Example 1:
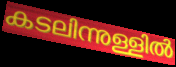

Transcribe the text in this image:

കടലിന്നുള്ളിൽ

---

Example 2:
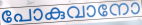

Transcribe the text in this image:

പോകുവാനോ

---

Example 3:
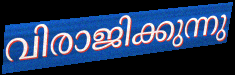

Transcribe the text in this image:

വിരാജിക്കുന്നു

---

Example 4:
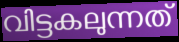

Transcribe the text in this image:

വിട്ടകലുന്നത്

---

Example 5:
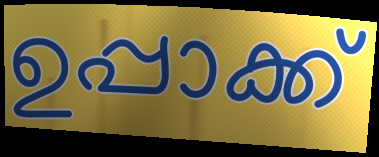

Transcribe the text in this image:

ഉപ്പാക്ക്